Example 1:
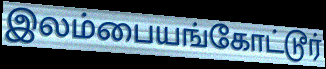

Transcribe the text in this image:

இலம்பையங்கோட்டூர்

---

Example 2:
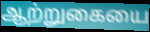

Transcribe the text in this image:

ஆற்றுகையை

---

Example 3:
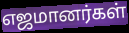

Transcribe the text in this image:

எஜமானர்கள்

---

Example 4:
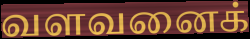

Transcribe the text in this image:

வளவனைக்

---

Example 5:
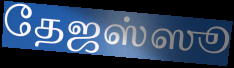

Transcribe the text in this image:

தேஜஸ்ஸூ